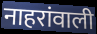
नाहरांवाली